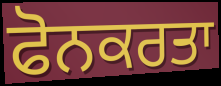
ਫੋਨਕਰਤਾ